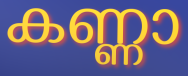
കണ്ണാ